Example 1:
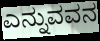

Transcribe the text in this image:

ಎನ್ನುವವನ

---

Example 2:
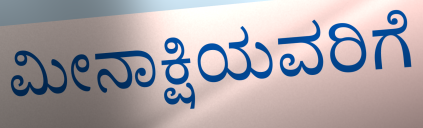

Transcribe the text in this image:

ಮೀನಾಕ್ಷಿಯವರಿಗೆ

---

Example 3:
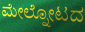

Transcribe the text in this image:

ಮೇಲ್ನೋಟದ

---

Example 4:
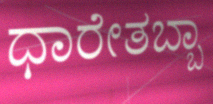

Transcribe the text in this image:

ಧಾರೇತಬ್ಬಾ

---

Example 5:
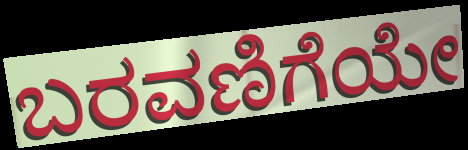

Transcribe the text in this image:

ಬರವಣಿಗೆಯೇ